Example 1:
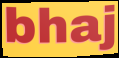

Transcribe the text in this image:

bhaj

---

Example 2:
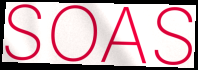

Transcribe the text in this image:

SOAS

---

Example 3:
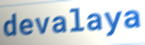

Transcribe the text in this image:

devalaya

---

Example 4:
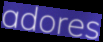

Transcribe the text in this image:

adores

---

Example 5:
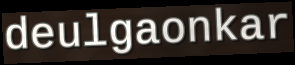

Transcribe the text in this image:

deulgaonkar